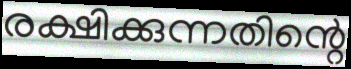
രക്ഷിക്കുന്നതിന്റെ